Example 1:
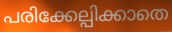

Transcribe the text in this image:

പരിക്കേല്പിക്കാതെ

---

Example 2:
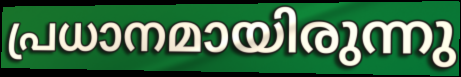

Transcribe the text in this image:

പ്രധാനമായിരുന്നു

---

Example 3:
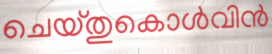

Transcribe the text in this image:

ചെയ്തുകൊൾവിൻ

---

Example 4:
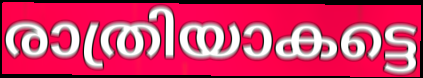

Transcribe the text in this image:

രാത്രിയാകട്ടെ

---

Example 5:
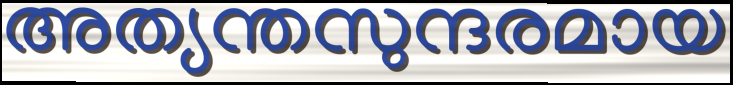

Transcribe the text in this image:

അത്യന്തസുന്ദരമായ